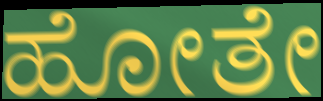
ಹೋತೇ